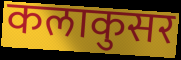
कलाकुसर